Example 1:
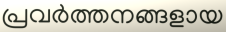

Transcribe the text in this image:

പ്രവർത്തനങ്ങളായ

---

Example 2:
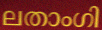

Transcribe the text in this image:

ലതാംഗി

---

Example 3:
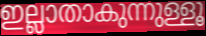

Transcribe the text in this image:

ഇല്ലാതാകുന്നുള്ളൂ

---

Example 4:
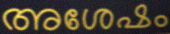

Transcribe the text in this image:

അശേഷം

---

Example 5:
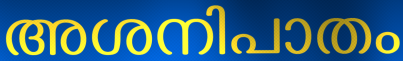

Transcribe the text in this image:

അശനിപാതം